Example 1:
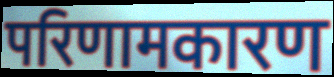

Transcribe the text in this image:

परिणामकारण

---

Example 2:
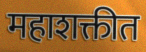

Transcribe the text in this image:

महाशक्तीत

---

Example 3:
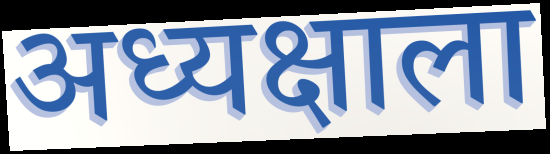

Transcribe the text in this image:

अध्यक्षाला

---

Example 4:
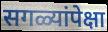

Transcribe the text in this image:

सगळ्यांपेक्षा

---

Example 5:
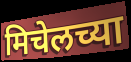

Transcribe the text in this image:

मिचेलच्या